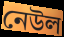
নেউল